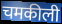
चमकीली